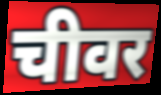
चीवर